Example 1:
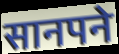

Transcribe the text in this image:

सानपने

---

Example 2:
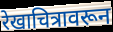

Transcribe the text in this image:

रेखाचित्रावरून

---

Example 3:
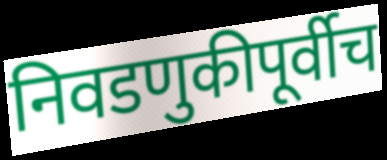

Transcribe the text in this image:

निवडणुकीपूर्वीच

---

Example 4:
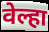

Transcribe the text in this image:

वेल्हा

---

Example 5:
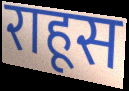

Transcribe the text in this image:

राहूस